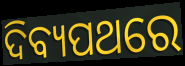
ଦିବ୍ୟପଥରେ